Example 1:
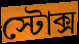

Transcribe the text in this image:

স্টোক্স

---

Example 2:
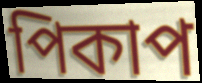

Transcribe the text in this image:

পিকাপ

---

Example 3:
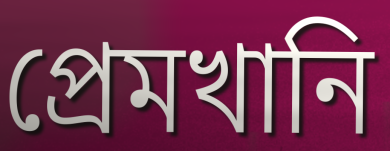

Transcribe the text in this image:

প্রেমখানি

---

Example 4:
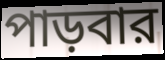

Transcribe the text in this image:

পাড়বার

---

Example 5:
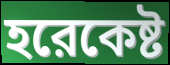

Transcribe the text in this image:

হরেকেষ্ট